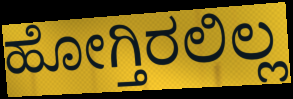
ಹೋಗ್ತಿರಲಿಲ್ಲ